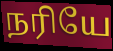
நரியே